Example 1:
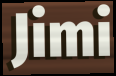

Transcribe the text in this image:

Jimi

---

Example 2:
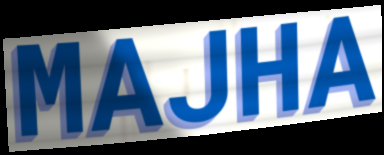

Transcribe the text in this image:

MAJHA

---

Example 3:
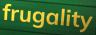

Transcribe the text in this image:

frugality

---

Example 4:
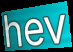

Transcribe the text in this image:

hev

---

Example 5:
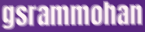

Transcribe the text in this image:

gsrammohan